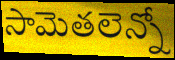
సామెతలెన్నో